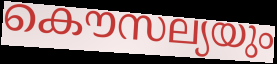
കൌസല്യയും